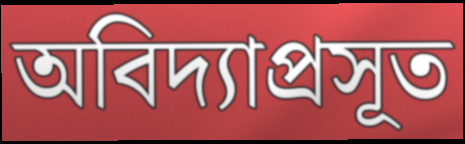
অবিদ্যাপ্রসূত